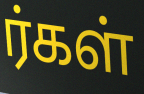
ர்கள்